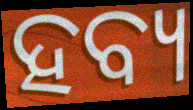
ହବ୍ୟ